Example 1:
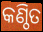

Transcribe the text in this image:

କଣ୍ଠିତ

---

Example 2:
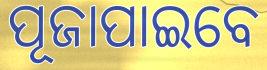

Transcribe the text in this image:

ପୂଜାପାଇବେ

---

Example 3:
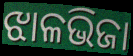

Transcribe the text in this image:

ଝାଳଭିଜା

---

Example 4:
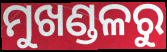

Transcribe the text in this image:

ମୁଖଣ୍ଡଳରୁ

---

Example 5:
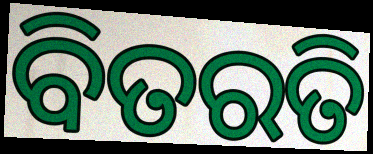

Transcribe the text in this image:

ବିତରତି